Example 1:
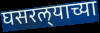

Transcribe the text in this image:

घसरल्याच्या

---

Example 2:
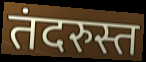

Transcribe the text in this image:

तंदरुस्त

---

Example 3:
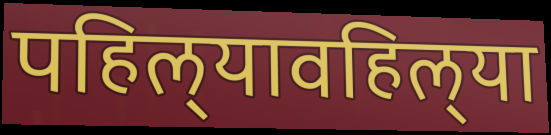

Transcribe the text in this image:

पहिल्यावहिल्या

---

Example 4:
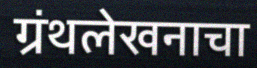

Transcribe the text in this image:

ग्रंथलेखनाचा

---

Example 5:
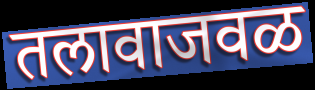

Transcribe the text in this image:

तलावाजवळ